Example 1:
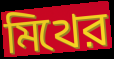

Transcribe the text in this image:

মিথের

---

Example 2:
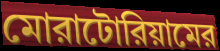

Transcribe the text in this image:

মোরাটোরিয়ামের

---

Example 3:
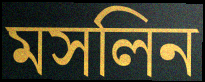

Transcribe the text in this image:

মসলিন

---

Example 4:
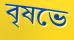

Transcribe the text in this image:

বৃষভে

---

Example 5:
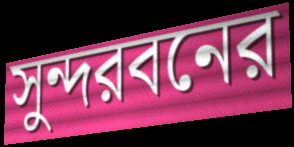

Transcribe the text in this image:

সুন্দরবনের